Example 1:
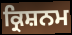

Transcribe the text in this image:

ਕ੍ਰਿਸ਼ਨਮ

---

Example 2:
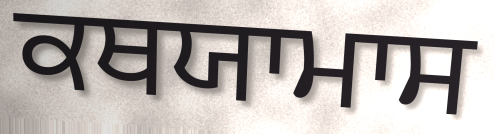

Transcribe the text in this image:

ਕਥਯਾਮਾਸ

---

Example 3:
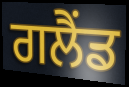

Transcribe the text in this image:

ਗਲੈਂਡ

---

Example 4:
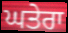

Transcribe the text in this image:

ਘਤੇਰਾ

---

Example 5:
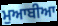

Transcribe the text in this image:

ਮੁਆਬੀਆ